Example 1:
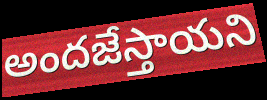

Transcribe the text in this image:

అందజేస్తాయని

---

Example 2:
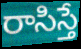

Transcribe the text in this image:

రాసిస్తే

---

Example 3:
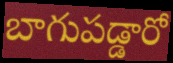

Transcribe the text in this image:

బాగుపడ్డారో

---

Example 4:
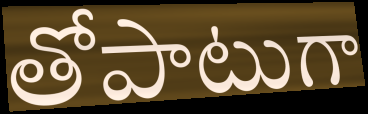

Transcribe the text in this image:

తోపాటుగా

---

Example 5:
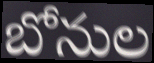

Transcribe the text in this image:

బోనుల